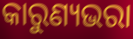
କାରୁଣ୍ୟଭରା